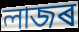
লাজৰ